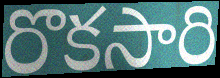
రొకసారి